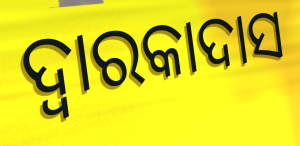
ଦ୍ୱାରକାଦାସ